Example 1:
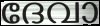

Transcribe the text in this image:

ദേവാ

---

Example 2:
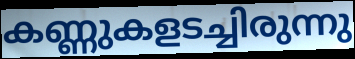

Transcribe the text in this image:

കണ്ണുകളടച്ചിരുന്നു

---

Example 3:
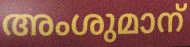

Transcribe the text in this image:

അംശുമാന്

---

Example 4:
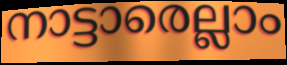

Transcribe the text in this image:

നാട്ടാരെല്ലാം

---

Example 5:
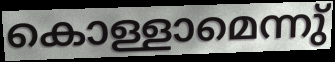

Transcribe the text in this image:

കൊള്ളാമെന്നു്